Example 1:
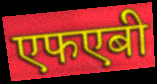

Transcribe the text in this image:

एफएबी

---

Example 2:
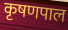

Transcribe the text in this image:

कृषणपाल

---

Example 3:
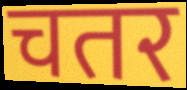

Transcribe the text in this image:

चतर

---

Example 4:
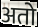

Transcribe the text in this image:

अतो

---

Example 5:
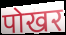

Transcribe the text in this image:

पोखर